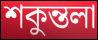
শকুন্তলা